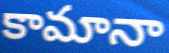
కామానా